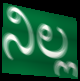
ನಿಲ್ಲ